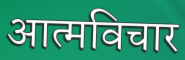
आत्मविचार